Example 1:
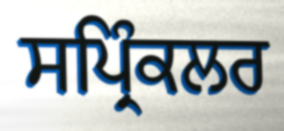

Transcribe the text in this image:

ਸਪ੍ਰਿੰਕਲਰ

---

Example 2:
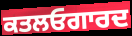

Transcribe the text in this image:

ਕਤਲਓਗਾਰਦ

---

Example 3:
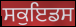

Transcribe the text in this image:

ਸਕੁਇਡਸ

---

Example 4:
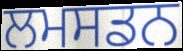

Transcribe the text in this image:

ਲਮਸਡਨ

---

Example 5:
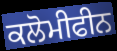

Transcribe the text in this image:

ਕਲੋਮੀਫੀਨ